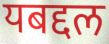
यबद्दल